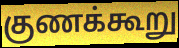
குணக்கூறு